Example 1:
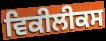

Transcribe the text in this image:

ਵਿਕੀਲੀਕਸ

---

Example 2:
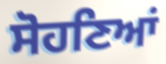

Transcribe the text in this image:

ਸੋਹਣਿਆਂ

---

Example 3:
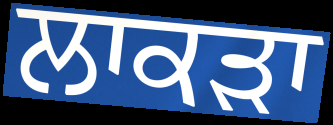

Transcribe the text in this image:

ਲਾਕੜਾ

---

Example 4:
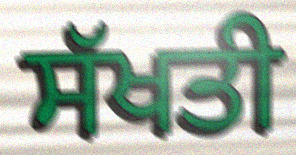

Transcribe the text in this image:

ਸੱਖਤੀ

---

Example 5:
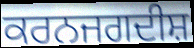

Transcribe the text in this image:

ਕਰਨਜਗਦੀਸ਼